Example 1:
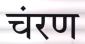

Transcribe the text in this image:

चंरण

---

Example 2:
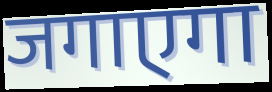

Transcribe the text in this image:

जगाएगा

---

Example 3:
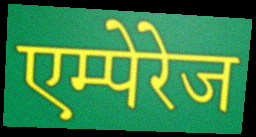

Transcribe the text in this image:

एम्पेरेज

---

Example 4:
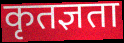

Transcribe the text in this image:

कृतज्ञता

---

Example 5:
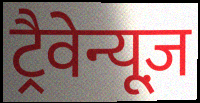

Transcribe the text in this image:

ट्रैवेन्यूज़